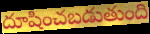
దూషించబడుతుంది